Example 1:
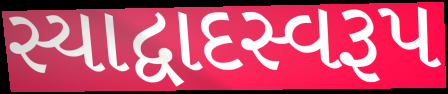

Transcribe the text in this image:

સ્યાદ્વાદસ્વરૂપ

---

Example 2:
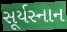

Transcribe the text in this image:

સૂર્યસ્નાન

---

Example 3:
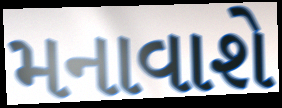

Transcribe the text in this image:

મનાવાશે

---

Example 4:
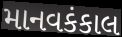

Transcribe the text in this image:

માનવકંકાલ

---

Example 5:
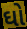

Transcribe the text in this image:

ઘો